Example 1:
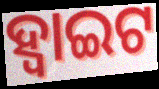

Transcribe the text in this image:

ହ୍ୱାଇଟ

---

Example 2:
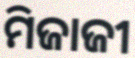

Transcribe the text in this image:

ମିଜାଜୀ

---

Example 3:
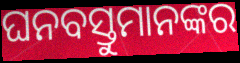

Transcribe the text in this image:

ଘନବସ୍ତୁମାନଙ୍କର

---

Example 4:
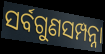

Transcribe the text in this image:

ସର୍ବଗୁଣସମ୍ପନ୍ନା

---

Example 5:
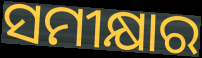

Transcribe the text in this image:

ସମୀକ୍ଷାର